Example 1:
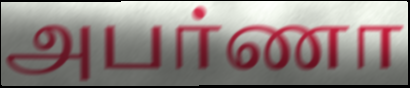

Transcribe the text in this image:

அபர்ணா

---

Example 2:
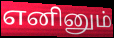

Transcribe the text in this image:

எனினும்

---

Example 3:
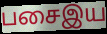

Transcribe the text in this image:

பசைஇய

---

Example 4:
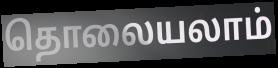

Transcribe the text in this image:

தொலையலாம்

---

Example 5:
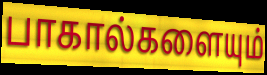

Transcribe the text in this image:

பாகால்களையும்